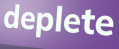
deplete